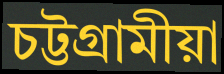
চট্টগ্ৰামীয়া